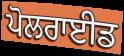
ਪੋਲਰਾਈਡ